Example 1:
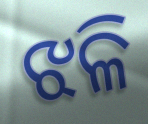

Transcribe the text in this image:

ଝଳି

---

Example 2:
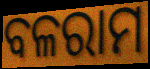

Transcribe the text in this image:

ବଳରାମ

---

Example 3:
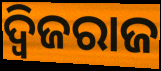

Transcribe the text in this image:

ଦ୍ୱିଜରାଜ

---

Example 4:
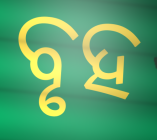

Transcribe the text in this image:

ବୃହ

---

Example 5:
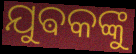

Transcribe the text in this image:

ଯୁଵକଙ୍କୁ